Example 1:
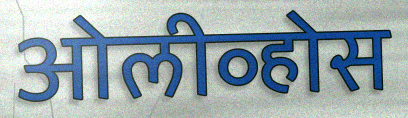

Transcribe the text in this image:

ओलीव्होस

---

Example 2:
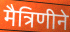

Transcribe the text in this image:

मैत्रिणीने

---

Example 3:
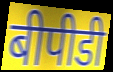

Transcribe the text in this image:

बीपीडी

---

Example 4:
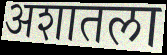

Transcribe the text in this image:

अशातला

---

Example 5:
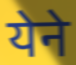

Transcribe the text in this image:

येने